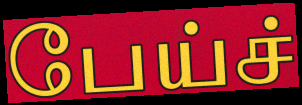
பேய்ச்